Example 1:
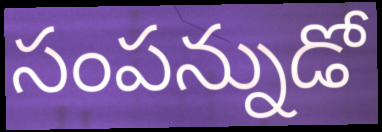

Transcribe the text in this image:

సంపన్నుడో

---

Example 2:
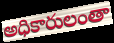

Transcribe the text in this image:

అధికారులంతా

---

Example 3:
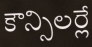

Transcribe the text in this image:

కౌన్సిలర్లే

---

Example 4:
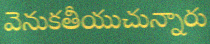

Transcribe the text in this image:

వెనుకతీయుచున్నారు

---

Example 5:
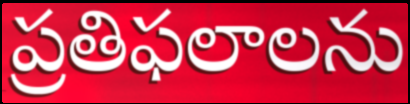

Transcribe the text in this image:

ప్రతిఫలాలను